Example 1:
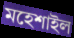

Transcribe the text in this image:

মহেশাইল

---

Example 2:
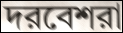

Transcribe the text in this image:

দরবেশরা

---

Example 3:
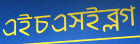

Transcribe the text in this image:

এইচএসইব্লগ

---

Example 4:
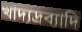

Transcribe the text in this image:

খাদ্যদ্রব্যাদি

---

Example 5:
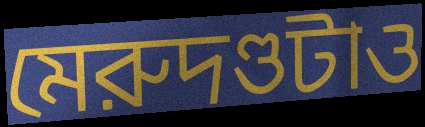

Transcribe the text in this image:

মেরুদণ্ডটাও